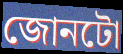
জোনটো